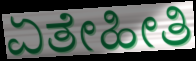
ಏತೇಹೀತಿ